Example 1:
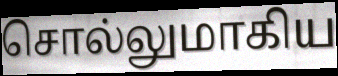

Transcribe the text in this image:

சொல்லுமாகிய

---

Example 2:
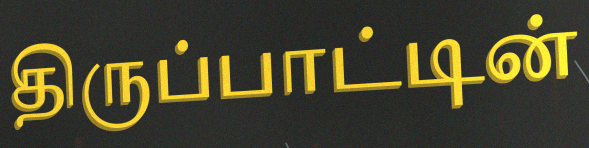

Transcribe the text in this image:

திருப்பாட்டின்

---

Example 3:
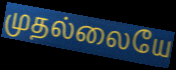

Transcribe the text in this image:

முதல்லையே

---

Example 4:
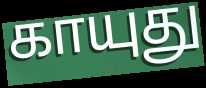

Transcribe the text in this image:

காயுது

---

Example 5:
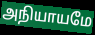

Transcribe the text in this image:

அநியாயமே